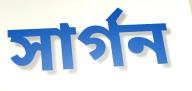
সার্গন